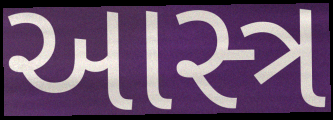
આસ્ત્ર